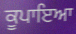
ਕੂਪਾਇਆ